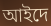
আইদে